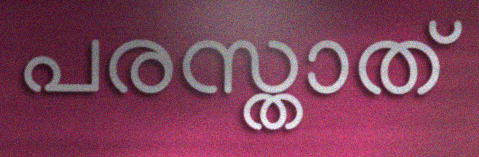
പരസ്താത്